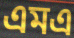
এমএ